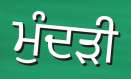
ਮੁੰਦੜੀ